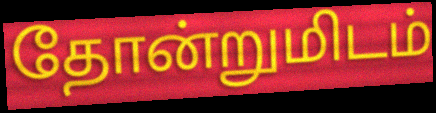
தோன்றுமிடம்